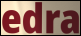
edra